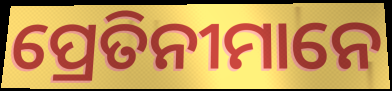
ପ୍ରେତିନୀମାନେ